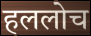
हललोच